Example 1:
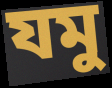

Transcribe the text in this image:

যমু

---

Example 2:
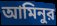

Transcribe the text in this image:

আমিনুর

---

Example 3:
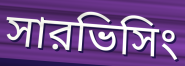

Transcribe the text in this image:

সারভিসিং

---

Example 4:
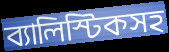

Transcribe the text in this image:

ব্যালিস্টিকসহ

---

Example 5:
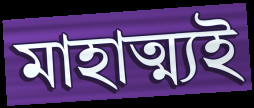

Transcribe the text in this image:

মাহাত্ম্যই